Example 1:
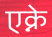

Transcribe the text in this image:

एक्ने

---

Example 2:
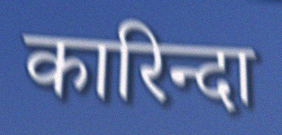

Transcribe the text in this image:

कारिन्दा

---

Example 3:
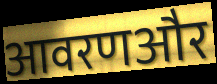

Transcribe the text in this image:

आवरणऔर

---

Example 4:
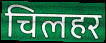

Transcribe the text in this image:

चिलहर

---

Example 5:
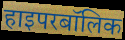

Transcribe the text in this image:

हाइपरबॉलिक